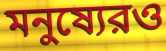
মনুষ্যেরও